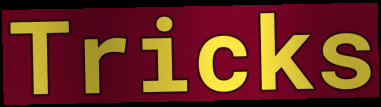
Tricks